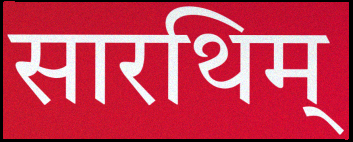
सारथिम्